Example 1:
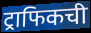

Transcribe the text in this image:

ट्राफिकची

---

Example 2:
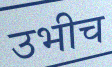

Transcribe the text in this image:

उभीच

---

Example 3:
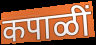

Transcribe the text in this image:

कपाळीं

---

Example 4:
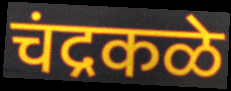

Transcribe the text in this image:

चंद्रकळे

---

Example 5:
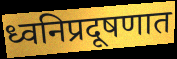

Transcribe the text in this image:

ध्वनिप्रदूषणात